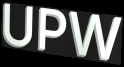
UPW